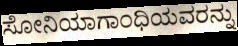
ಸೋನಿಯಾಗಾಂಧಿಯವರನ್ನು